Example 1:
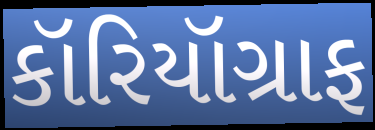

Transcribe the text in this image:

કૉરિયૉગ્રાફ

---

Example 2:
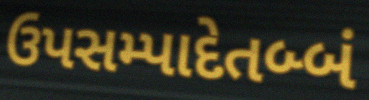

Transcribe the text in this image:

ઉપસમ્પાદેતબ્બં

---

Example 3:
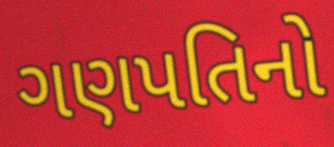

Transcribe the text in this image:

ગણપતિનો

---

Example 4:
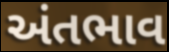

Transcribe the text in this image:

અંતભાવ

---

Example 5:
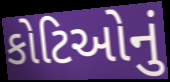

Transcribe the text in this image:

કોટિઓનું